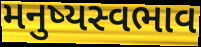
મનુષ્યસ્વભાવ